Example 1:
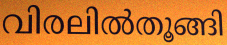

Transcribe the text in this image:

വിരലിൽതൂങ്ങി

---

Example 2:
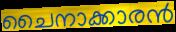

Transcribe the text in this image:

ചൈനാക്കാരൻ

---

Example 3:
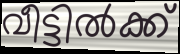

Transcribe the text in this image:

വീട്ടിൽക്ക്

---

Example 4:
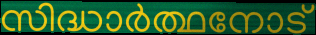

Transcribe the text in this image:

സിദ്ധാർത്ഥനോട്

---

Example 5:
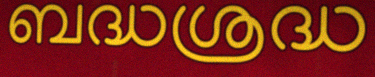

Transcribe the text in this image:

ബദ്ധശ്രദ്ധ